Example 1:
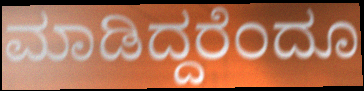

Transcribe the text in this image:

ಮಾಡಿದ್ದರೆಂದೂ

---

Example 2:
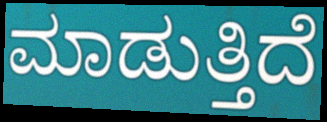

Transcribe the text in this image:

ಮಾಡುತ್ತಿದೆ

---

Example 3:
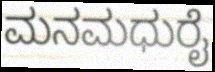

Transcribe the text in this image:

ಮನಮಧುರೈ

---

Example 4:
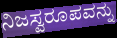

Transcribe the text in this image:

ನಿಜಸ್ವರೂಪವನ್ನು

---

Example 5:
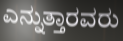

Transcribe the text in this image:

ಎನ್ನುತ್ತಾರವರು